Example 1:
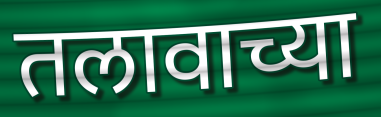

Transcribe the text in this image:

तलावाच्या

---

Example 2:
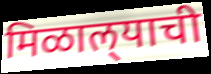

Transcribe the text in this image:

मिळाल्याची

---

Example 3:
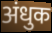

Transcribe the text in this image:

अंधुक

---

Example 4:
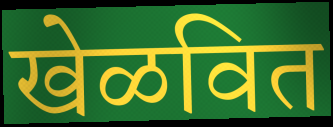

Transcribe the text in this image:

खेळवित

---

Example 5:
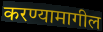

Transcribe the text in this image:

करण्यामागील